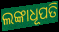
ଲଙ୍କାଧୂପତି